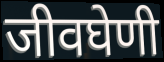
जीवघेणी